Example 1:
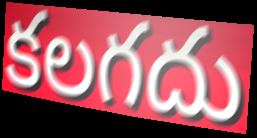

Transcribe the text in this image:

కలగదు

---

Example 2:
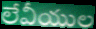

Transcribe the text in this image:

లేవీయుల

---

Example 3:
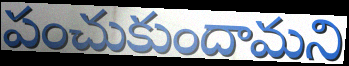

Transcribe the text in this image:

పంచుకుందామని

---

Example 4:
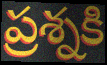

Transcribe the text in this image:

ప్రశ్నకి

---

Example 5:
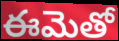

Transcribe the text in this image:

ఈమెతో